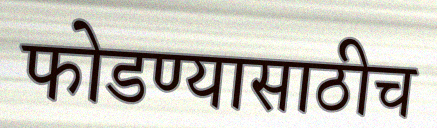
फोडण्यासाठीच